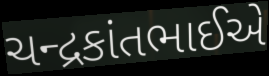
ચન્દ્રકાંતભાઈએ